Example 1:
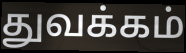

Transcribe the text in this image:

துவக்கம்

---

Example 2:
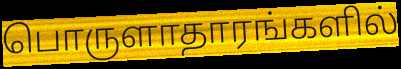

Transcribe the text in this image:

பொருளாதாரங்களில்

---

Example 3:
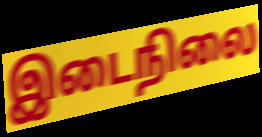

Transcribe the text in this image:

இடைநிலை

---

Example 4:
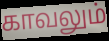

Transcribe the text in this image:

காவலும்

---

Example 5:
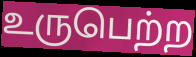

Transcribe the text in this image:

உருபெற்ற